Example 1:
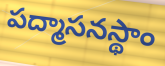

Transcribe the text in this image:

పద్మాసనస్థాం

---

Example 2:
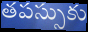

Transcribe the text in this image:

తపస్సుకు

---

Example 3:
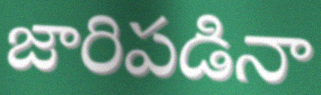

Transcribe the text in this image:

జారిపడినా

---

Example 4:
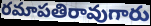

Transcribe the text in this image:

రమాపతిరావుగారు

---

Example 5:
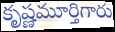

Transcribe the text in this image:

కృష్ణమూర్తిగారు